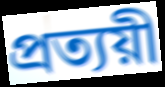
প্ৰত্যয়ী